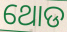
ଥୋଡ